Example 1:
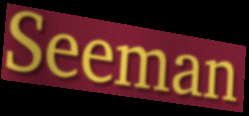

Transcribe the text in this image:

Seeman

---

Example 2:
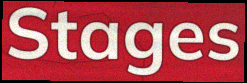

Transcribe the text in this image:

Stages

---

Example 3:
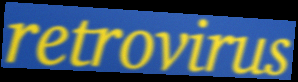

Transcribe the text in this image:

retrovirus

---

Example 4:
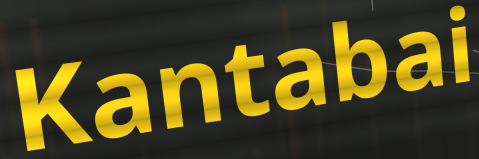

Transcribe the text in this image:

Kantabai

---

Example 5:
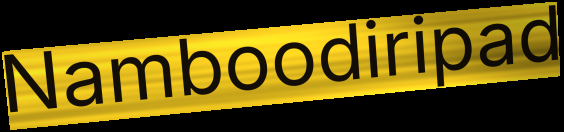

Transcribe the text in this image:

Namboodiripad